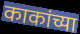
काकांच्या